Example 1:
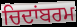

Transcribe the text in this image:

ਚਿਦਾਂਬਰਮ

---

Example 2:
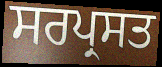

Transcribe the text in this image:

ਸਰਪ੍ਰਸਤ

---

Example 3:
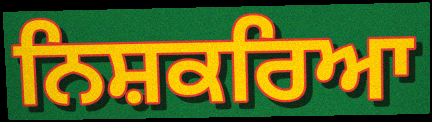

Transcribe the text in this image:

ਨਿਸ਼ਕਰਿਆ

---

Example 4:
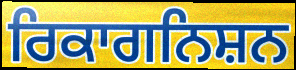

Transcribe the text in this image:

ਰਿਕਾਗਨਿਸ਼ਨ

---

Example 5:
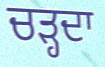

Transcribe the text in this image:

ਚੜ੍ਹਦਾ